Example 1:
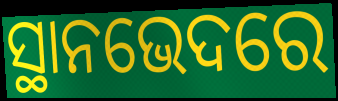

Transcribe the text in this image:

ସ୍ଥାନଭେଦରେ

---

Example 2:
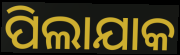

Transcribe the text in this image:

ପିଲାଯାକ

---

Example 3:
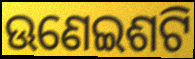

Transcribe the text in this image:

ଊଣେଇଶଟି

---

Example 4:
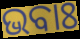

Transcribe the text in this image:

ଭବାଃ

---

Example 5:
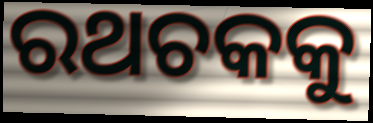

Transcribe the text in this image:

ରଥଚକକୁ